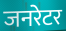
जनरेटर